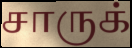
சாருக்